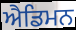
ਐਡਿਮਨ